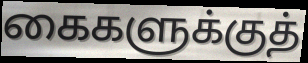
கைகளுக்குத்